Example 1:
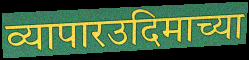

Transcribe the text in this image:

व्यापारउदिमाच्या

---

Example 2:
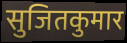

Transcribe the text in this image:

सुजितकुमार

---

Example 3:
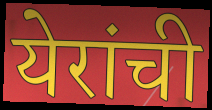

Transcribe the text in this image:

येरांची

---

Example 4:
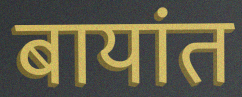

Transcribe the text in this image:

बायांत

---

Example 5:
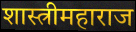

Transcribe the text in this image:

शास्त्रीमहाराज